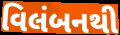
વિલંબનથી